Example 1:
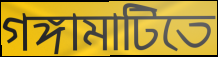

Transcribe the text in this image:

গঙ্গামাটিতে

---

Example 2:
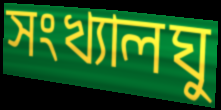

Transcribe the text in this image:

সংখ্যালঘু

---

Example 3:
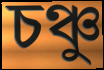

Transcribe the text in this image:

চঞ্চু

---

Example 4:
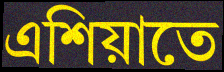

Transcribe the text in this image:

এশিয়াতে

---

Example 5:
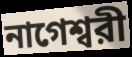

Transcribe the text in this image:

নাগেশ্বরী